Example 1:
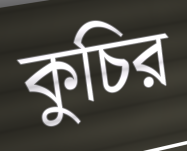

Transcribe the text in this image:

কুচির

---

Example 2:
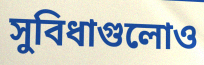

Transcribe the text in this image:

সুবিধাগুলোও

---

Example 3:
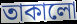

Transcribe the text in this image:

তাকালো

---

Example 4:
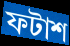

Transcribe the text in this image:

ফটাশ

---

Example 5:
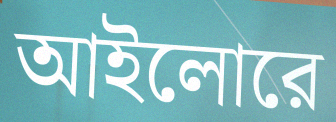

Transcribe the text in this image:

আইলোরে